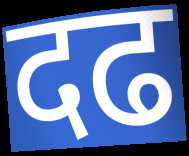
दढ